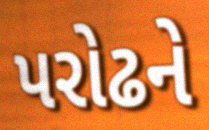
પરોઢને